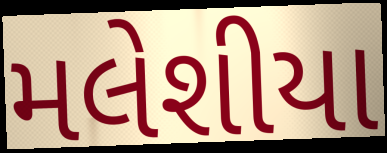
મલેશીયા